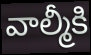
వాల్మీకి